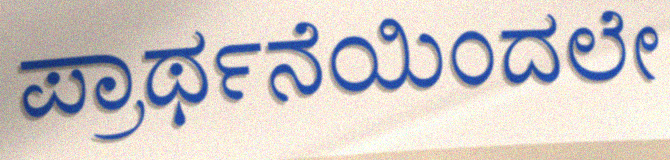
ಪ್ರಾರ್ಥನೆಯಿಂದಲೇ